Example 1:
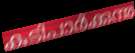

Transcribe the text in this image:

കുടിപാർക്കുന്നു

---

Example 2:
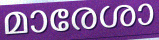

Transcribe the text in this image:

മാരേശാ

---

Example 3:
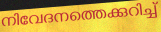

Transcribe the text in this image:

നിവേദനത്തെക്കുറിച്ച്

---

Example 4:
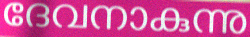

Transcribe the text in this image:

ദേവനാകുന്നു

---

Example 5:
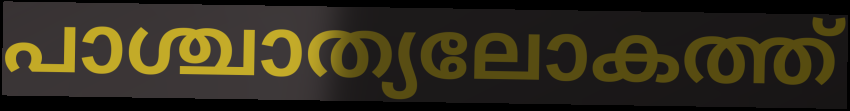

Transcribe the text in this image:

പാശ്ചാത്യലോകത്ത്